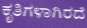
ಕೃತಿಗಳಾಗಿರದೆ